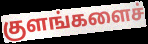
குளங்களைச்